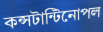
কন্সটান্টিনোপল